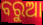
ବରୁଆ